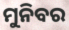
ମୁନିବର